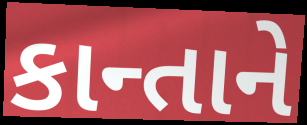
કાન્તાને